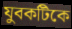
যুবকটিকে